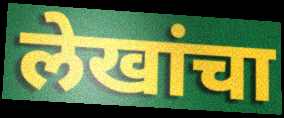
लेखांचा